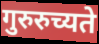
गुरुरुच्यते